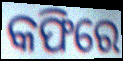
କଫିରେ